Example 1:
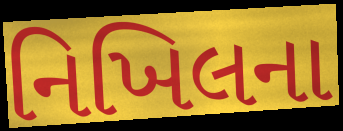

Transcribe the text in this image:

નિખિલના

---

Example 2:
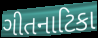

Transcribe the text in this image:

ગીતનાટિકા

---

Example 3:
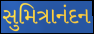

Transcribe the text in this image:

સુમિત્રાનંદન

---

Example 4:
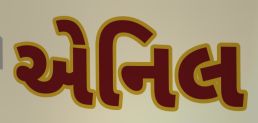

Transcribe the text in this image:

એનિલ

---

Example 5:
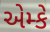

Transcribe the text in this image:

એમ્કે